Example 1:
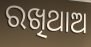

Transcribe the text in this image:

ରଖିଥାଅ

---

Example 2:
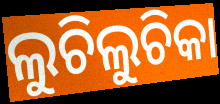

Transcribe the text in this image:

ଲୁଚିଲୁଚିକା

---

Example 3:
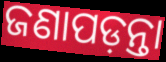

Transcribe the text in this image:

ଜଣାପଡ଼ନ୍ତା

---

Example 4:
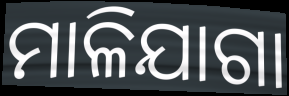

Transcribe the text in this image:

ମାଳିଯାଗା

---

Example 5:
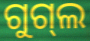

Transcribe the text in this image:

ଗୁଗ୍‌ଲ